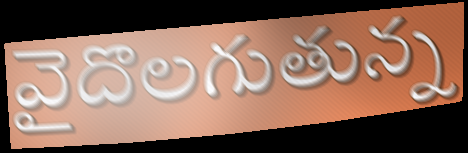
వైదొలగుతున్న